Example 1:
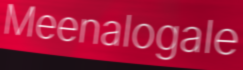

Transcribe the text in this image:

Meenalogale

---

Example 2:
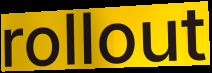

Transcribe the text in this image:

rollout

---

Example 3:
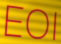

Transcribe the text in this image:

EOI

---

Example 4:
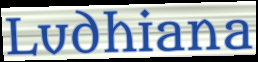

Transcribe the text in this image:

Ludhiana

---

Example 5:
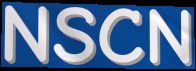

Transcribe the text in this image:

NSCN